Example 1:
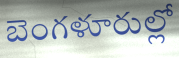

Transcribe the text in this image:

బెంగళూరుల్లో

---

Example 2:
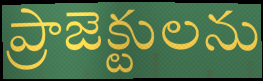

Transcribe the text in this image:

ప్రాజెక్టులను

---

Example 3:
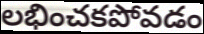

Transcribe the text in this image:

లభించకపోవడం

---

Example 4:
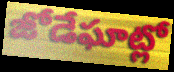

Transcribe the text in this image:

జోడేఘాట్లో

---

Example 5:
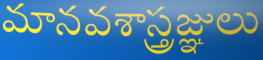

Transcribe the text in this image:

మానవశాస్త్రజ్ఞులు